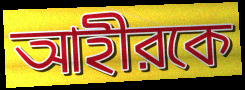
আহীরকে